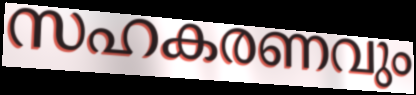
സഹകരണവും